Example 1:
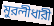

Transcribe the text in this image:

মুরলীধারী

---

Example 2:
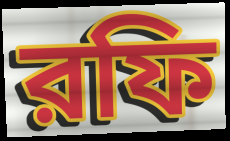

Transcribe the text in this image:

রফি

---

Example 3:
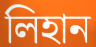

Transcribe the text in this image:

লিহান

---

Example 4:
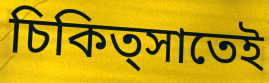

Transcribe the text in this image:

চিকিত্সাতেই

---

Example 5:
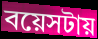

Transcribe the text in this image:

বয়েসটায়